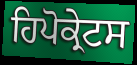
ਹਿਪੋਕ੍ਰੇਟਸ